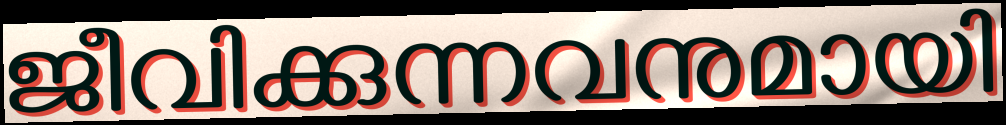
ജീവിക്കുന്നവനുമായി